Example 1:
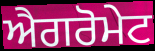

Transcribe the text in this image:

ਐਗਰੋਮੇਟ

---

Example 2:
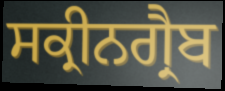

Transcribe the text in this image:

ਸਕ੍ਰੀਨਗ੍ਰੈਬ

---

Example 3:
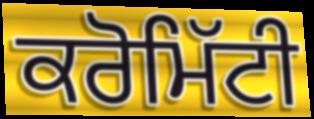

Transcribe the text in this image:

ਕਰੋਮਿੱਟੀ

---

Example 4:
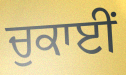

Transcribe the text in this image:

ਚੁਕਾਈਂ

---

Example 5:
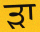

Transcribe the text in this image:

ੜਾ